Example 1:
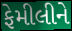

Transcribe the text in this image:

ફેમીલીને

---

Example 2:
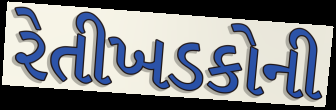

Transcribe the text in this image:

રેતીખડકોની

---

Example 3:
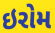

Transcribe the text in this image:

ઇરોમ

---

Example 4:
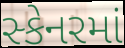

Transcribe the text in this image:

સ્કેનરમાં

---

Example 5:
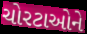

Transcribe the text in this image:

ચોરટાઓને